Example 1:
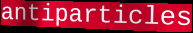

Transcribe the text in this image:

antiparticles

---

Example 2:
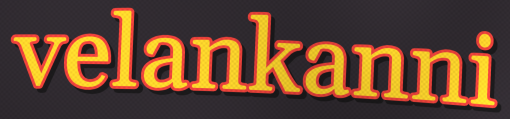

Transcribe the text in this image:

velankanni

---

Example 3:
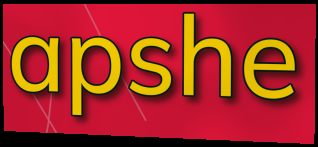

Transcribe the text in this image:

apshe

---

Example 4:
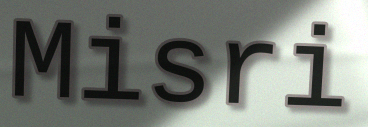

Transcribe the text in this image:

Misri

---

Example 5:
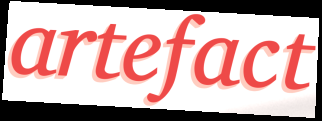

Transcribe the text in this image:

artefact